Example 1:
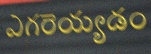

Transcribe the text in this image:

ఎగరెయ్యడం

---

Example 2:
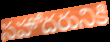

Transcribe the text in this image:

సహోదరునికి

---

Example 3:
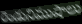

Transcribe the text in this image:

రెండునిముషాలు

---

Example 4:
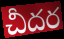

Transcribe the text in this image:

చీదర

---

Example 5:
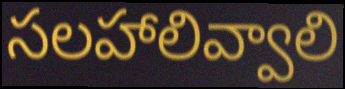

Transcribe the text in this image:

సలహాలివ్వాలి